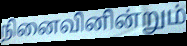
நினைவினின்றும்